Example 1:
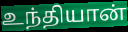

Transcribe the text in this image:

உந்தியான்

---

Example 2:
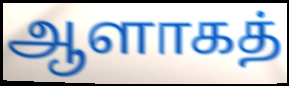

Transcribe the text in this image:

ஆளாகத்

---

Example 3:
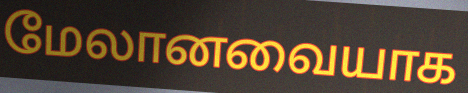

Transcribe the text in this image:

மேலானவையாக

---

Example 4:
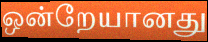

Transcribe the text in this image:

ஒன்றேயானது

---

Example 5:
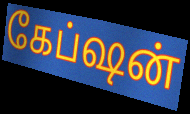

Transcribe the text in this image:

கேப்ஷன்